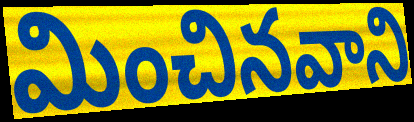
మించినవాని